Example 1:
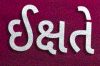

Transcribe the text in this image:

ઈક્ષતે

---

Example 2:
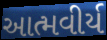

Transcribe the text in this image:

આત્મવીર્ય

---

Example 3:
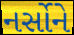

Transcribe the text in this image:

નર્સોને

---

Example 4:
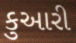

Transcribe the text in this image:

કુઆરી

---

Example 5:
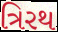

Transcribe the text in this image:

ત્રિરથ